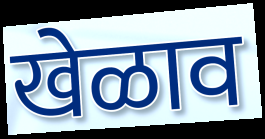
खेळाव